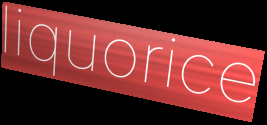
liquorice